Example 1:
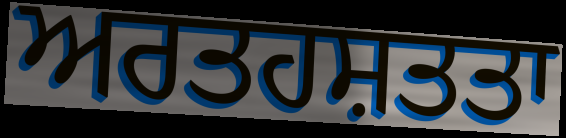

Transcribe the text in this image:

ਅਰਤਹਸ਼ਤਤਾ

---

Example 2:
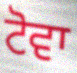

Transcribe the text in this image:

ਟੋਵਾ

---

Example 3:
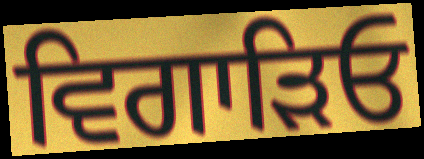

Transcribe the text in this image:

ਵਿਗਾੜਿਓ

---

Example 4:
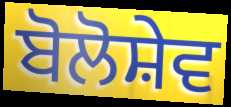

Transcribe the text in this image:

ਬੋਲੋਸ਼ੇਵ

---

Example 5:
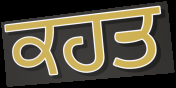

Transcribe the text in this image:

ਕਹਤ